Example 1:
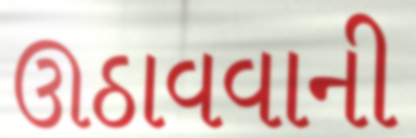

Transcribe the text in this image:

ઊઠાવવાની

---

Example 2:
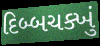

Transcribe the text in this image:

દિબ્બચક્ખું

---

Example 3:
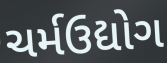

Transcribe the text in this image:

ચર્મઉદ્યોગ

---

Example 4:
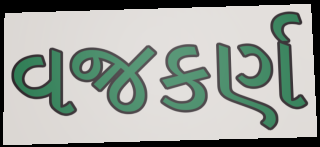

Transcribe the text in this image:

વજ્રકર્ણ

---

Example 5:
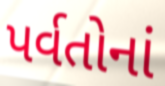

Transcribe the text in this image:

પર્વતોનાં